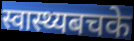
स्वास्थ्यबचके